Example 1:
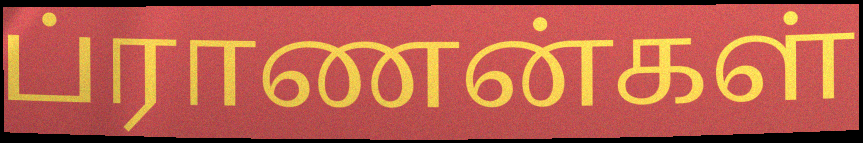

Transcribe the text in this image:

ப்ராணன்கள்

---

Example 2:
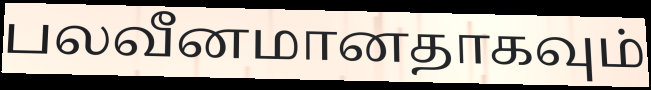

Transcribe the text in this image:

பலவீனமானதாகவும்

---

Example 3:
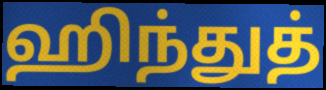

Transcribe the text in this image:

ஹிந்துத்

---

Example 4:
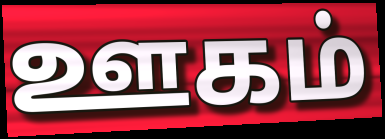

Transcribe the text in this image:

ஊகம்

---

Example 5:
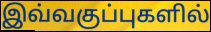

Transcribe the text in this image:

இவ்வகுப்புகளில்